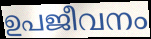
ഉപജീവനം